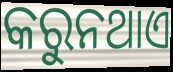
କରୁନଥାଏ